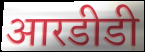
आरडीडी